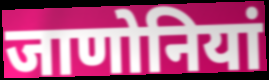
जाणोनियां